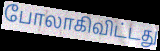
போலாகிவிட்டது